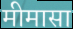
मीमासा